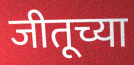
जीतूच्या